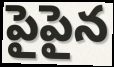
పైపైన